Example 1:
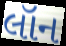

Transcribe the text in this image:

લૉન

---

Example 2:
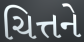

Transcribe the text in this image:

ચિત્તને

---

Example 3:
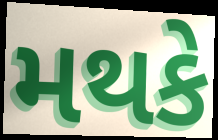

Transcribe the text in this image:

મથકે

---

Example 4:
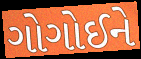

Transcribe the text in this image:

ગોગોઈને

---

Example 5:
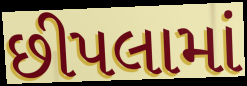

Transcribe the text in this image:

છીપલામાં